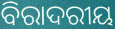
ବିରାଦରୀୟ